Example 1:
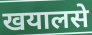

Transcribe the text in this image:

खयालसे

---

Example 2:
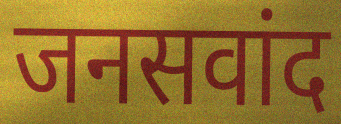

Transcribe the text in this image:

जनसवांद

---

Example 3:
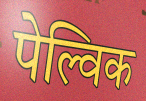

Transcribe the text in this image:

पेल्विक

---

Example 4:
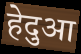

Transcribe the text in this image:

हेदुआ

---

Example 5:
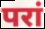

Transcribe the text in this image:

परां